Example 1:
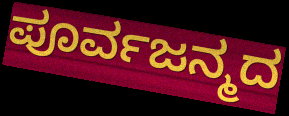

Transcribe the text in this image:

ಪೂರ್ವಜನ್ಮದ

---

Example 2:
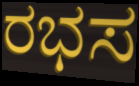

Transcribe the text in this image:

ರಭಸ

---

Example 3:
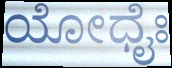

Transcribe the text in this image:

ಯೋಧೈಃ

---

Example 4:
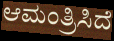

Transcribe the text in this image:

ಆಮಂತ್ರಿಸಿದೆ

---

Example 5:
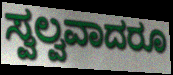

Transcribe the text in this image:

ಸ್ವಲ್ವವಾದರೂ